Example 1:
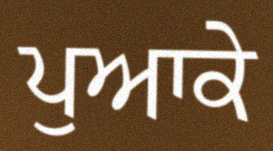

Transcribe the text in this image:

ਪੁਆਕੇ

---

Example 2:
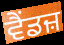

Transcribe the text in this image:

ਵੈਂਡਜ਼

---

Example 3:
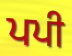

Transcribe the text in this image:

ਪਪੀ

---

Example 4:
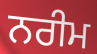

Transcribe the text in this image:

ਨਰੀਮ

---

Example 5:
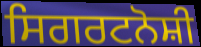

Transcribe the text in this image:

ਸਿਗਰਟਨੋਸ਼ੀ